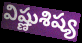
విష్ణుశిష్య